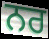
ਨਰ